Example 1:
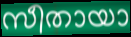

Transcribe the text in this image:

സീതായാ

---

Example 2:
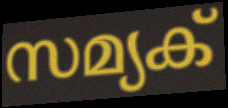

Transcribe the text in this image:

സമ്യക്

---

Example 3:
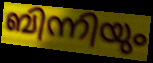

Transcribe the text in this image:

ബിന്നിയും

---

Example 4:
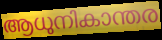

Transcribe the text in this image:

ആധുനികാന്തര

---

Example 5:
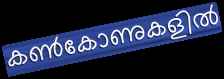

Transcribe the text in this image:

കൺകോണുകളിൽ